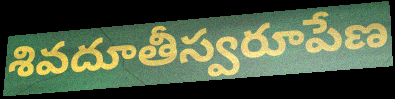
శివదూతీస్వరూపేణ